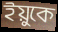
ইয়ুকে